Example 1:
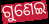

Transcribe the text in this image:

ଗୁଣେଇ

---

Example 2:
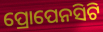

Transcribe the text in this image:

ପ୍ରୋପେନସିଟି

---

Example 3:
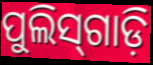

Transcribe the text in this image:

ପୁଲିସ୍‌ଗାଡ଼ି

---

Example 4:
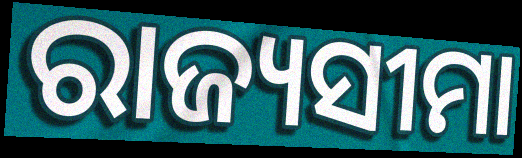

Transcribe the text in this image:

ରାଜ୍ୟସୀମା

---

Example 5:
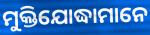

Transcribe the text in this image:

ମୁକ୍ତିଯୋଦ୍ଧାମାନେ